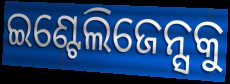
ଇଣ୍ଟେଲିଜେନ୍ସକୁ